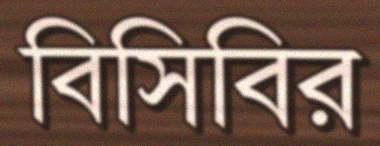
বিসিবির